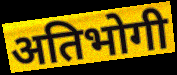
अतिभोगी